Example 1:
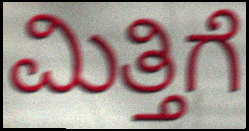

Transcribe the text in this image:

ಮಿತ್ತಿಗೆ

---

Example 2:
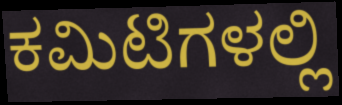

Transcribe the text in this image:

ಕಮಿಟಿಗಳಲ್ಲಿ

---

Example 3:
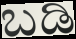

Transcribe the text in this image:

ಬಡಿ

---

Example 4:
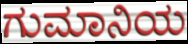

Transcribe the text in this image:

ಗುಮಾನಿಯ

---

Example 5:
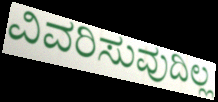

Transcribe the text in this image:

ವಿವರಿಸುವುದಿಲ್ಲ